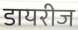
डायरीज